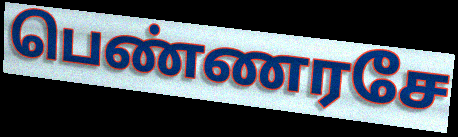
பெண்ணரசே